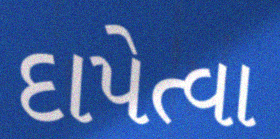
દાપેત્વા